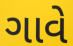
ગાવે